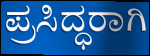
ಪ್ರಸಿದ್ಧರಾಗಿ